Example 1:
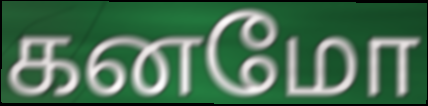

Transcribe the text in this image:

கனமோ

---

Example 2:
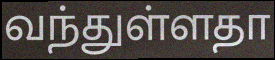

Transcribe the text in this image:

வந்துள்ளதா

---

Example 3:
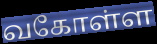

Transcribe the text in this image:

வகோள்ள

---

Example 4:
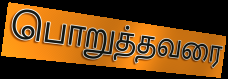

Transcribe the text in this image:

பொறுத்தவரை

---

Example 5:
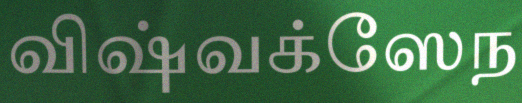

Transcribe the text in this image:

விஷ்வக்ஸேந